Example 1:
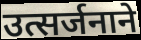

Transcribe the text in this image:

उत्सर्जनाने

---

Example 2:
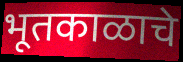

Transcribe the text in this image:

भूतकाळाचे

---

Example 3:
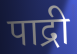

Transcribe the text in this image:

पाद्री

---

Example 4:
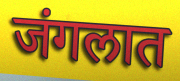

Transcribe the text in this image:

जंगलात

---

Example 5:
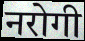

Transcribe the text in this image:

नरोगी